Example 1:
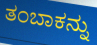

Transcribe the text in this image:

ತಂಬಾಕನ್ನು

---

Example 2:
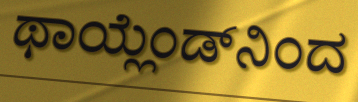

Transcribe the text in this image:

ಥಾಯ್ಲೆಂಡ್‌ನಿಂದ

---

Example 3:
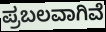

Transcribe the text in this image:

ಪ್ರಬಲವಾಗಿವೆ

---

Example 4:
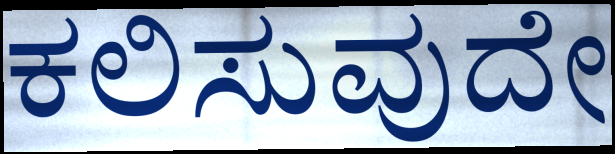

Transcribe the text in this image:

ಕಲಿಸುವುದೇ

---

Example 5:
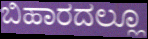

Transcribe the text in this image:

ಬಿಹಾರದಲ್ಲೂ